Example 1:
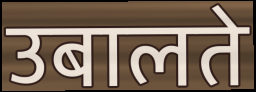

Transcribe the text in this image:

उबालते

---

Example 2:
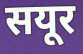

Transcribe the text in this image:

सयूर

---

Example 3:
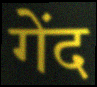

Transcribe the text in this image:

गेंद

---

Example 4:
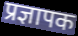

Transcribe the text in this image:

प्रज्ञापक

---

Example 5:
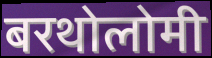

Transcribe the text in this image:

बरथोलोमी